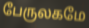
பேருலகமே